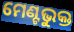
ମେଣ୍ଟଭୁକ୍ତ